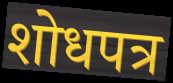
शोधपत्र